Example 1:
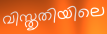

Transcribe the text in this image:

വിസ്തൃതിയിലെ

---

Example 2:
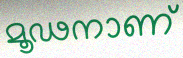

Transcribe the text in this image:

മൂഢനാണ്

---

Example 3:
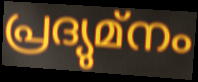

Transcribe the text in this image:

പ്രദ്യുമ്നം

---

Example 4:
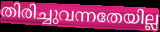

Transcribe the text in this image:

തിരിച്ചുവന്നതേയില്ല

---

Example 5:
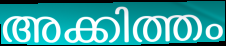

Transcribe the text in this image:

അക്കിത്തം